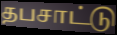
தபசாட்டு